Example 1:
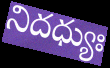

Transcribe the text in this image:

నిదధ్యుః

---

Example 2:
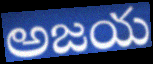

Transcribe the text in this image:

అజయ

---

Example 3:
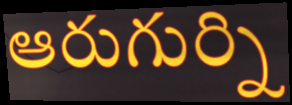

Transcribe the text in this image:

ఆరుగుర్ని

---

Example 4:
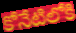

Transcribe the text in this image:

కోనేటిలోకి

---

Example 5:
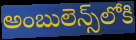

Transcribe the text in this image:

అంబులెన్స్‌లోకి